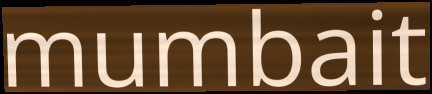
mumbait